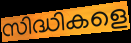
സിദ്ധികളെ